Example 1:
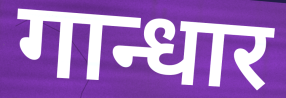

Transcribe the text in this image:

गान्धार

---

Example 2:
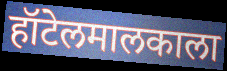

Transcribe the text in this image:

हॉटेलमालकाला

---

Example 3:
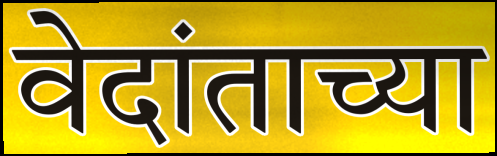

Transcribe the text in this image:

वेदांताच्या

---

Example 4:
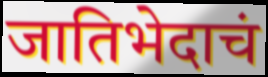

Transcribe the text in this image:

जातिभेदाचं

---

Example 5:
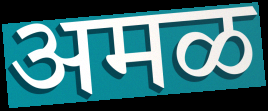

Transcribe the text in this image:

अमळ